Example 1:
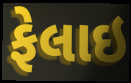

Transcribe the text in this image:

ફેલાઇ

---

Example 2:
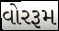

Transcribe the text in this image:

વોરરૂમ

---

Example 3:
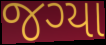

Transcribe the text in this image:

જગ્યા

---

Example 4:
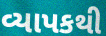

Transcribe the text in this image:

વ્યાપકથી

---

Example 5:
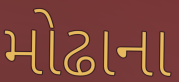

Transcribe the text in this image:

મોઢાના